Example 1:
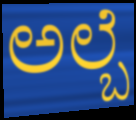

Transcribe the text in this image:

ಅಲ್ಬೆ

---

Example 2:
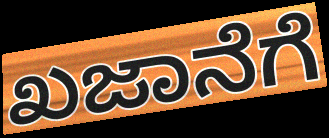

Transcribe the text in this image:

ಖಜಾನೆಗೆ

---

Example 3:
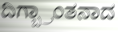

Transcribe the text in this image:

ದಿಗ್ಬ್ರಾಂತನಾದ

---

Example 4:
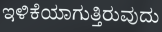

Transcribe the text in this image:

ಇಳಿಕೆಯಾಗುತ್ತಿರುವುದು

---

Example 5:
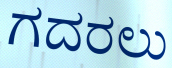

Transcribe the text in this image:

ಗದರಲು